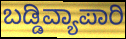
ಬಡ್ಡಿವ್ಯಾಪಾರಿ